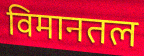
विमानतल